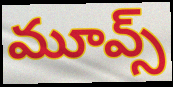
మూవ్స్